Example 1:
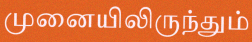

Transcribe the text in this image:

முனையிலிருந்தும்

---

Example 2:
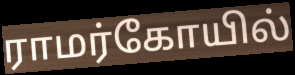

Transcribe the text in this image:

ராமர்கோயில்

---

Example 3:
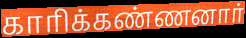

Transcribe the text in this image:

காரிக்கண்ணனார்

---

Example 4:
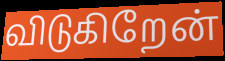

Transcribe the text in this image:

விடுகிறேன்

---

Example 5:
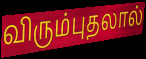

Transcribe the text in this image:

விரும்புதலால்